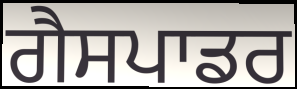
ਗੈਸਪਾਡਰ